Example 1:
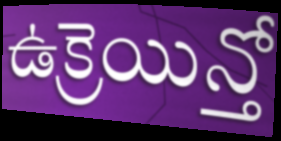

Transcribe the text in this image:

ఉక్రెయిన్తో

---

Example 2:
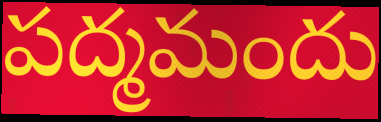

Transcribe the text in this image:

పద్మమందు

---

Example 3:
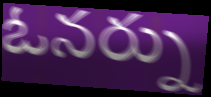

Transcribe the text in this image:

ఓనర్ను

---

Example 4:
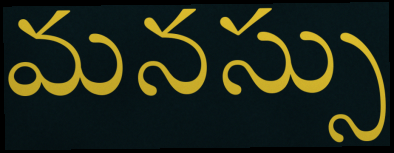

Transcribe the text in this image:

మనస్సు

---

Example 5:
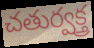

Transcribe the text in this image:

చతుర్వక్త్ర